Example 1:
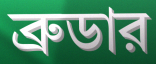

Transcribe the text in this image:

ব্রুডার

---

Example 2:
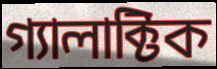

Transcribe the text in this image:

গ্যালাক্টিক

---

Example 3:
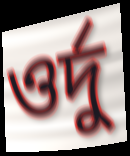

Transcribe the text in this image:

ওর্দু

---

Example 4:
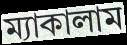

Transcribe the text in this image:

ম্যাকালাম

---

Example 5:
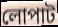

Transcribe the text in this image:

লোপাট